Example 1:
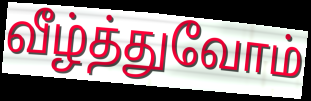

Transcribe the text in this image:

வீழ்த்துவோம்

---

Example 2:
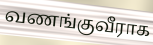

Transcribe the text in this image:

வணங்குவீராக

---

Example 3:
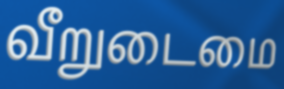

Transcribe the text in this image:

வீறுடைமை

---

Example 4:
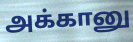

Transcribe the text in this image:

அக்கானு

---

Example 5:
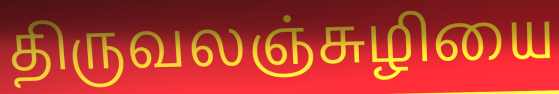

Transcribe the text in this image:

திருவலஞ்சுழியை